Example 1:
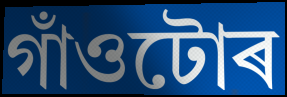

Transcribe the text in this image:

গাঁওটোৰ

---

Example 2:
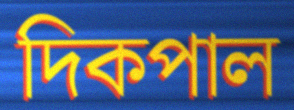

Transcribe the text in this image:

দিকপাল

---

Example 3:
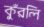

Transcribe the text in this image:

কুঁৱলি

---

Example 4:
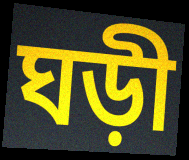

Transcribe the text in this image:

ঘড়ী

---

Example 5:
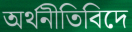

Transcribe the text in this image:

অৰ্থনীতিবিদে